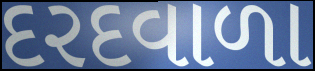
દરદવાળા